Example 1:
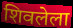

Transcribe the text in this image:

शिवलेला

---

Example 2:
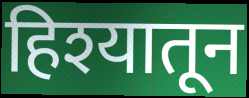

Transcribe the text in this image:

हिश्यातून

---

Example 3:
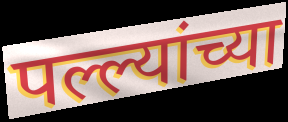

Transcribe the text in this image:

पल्ल्यांच्या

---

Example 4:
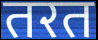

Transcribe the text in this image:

तरत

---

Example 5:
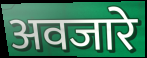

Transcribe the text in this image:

अवजारे